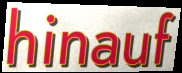
hinauf